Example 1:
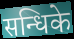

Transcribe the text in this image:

सन्धिके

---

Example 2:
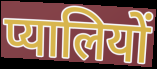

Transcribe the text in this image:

प्यालियों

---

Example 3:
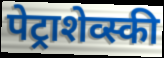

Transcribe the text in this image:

पेट्राशेव्स्की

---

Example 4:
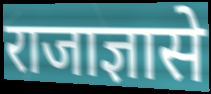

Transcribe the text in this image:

राजाज्ञासे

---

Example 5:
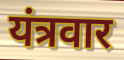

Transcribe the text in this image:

यंत्रवार